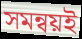
সমন্বয়ই